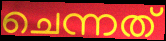
ചെന്നത്